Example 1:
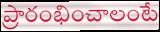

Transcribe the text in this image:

ప్రారంభించాలంటే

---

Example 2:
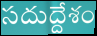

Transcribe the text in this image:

సదుద్దేశం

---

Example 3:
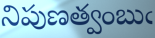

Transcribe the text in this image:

నిపుణత్వంబుఁ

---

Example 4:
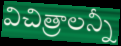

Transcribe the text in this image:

విచిత్రాలన్నీ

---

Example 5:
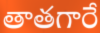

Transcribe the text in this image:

తాతగారే